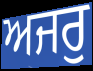
ਅਜਰੁ